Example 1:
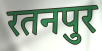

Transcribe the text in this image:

रतनपुर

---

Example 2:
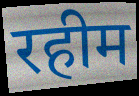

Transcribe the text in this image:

रहीम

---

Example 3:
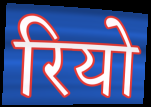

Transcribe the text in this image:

रियो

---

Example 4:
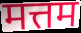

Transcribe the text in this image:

मत्तम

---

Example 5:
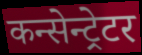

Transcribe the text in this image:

कन्सेन्ट्रेटर